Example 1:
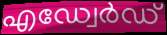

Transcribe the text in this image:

എഡ്വേർഡ്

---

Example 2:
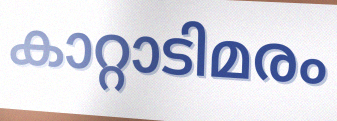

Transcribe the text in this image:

കാറ്റാടിമരം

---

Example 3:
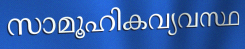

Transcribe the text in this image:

സാമൂഹികവ്യവസ്ഥ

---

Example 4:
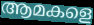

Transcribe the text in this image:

ആമകളെ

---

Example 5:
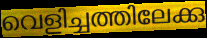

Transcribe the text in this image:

വെളിച്ചത്തിലേക്കു